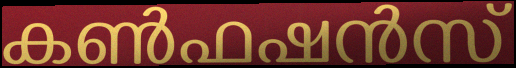
കൺഫഷൻസ്